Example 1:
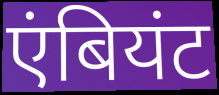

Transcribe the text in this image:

एंबियंट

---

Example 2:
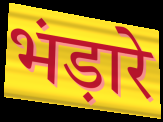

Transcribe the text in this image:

भंड़ारे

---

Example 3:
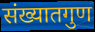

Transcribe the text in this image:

संख्यातगुण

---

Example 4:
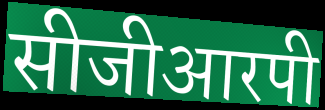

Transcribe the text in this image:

सीजीआरपी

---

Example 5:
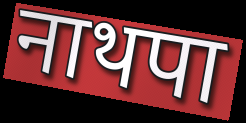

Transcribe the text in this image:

नाथपा